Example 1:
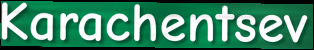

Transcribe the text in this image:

Karachentsev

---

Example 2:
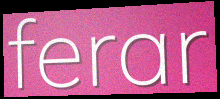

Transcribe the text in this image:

ferar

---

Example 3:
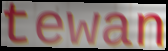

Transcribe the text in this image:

tewan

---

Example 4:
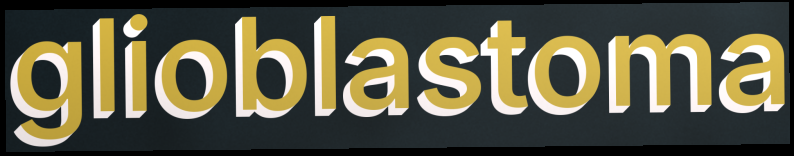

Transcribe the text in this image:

glioblastoma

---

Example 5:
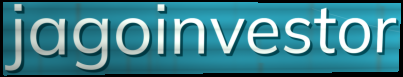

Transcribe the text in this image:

jagoinvestor